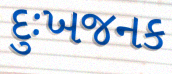
દુઃખજનક